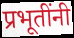
प्रभूतींनी